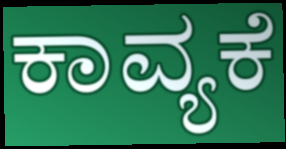
ಕಾವ್ಯಕೆ